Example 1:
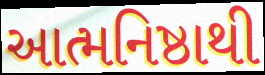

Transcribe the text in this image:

આત્મનિષ્ઠાથી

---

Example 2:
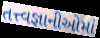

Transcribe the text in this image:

તત્ત્વજ્ઞાનીઓમાં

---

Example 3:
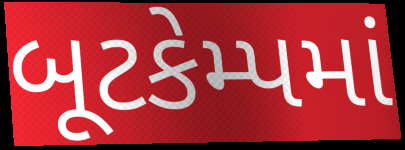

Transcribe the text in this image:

બૂટકેમ્પમાં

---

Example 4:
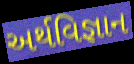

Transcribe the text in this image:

અર્થવિજ્ઞાન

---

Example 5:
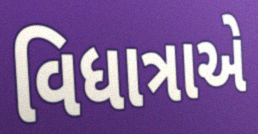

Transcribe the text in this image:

વિધાત્રાએ